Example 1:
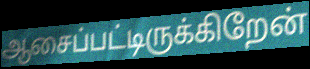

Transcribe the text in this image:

ஆசைப்பட்டிருக்கிறேன்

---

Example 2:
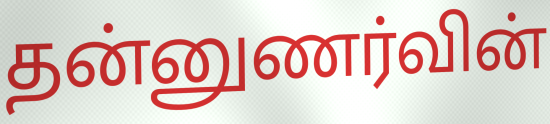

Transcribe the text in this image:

தன்னுணர்வின்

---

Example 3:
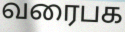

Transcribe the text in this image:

வரைபக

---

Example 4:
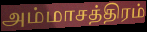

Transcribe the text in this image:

அம்மாசத்திரம்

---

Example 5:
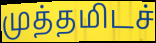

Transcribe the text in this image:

முத்தமிடச்